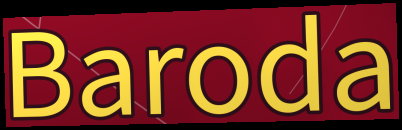
Baroda